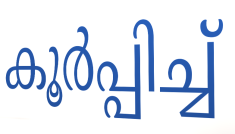
കൂർപ്പിച്ച്